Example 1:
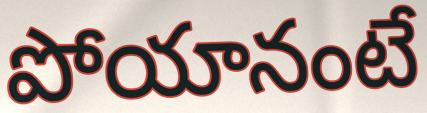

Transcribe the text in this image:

పోయానంటే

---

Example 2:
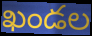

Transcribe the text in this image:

ఖండల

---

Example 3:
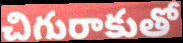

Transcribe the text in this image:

చిగురాకుతో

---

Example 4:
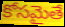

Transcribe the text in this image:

కోసమైతే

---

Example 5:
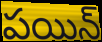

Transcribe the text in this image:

పయిన్